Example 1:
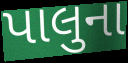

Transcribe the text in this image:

પાલુના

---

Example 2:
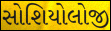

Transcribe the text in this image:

સોશિયોલોજી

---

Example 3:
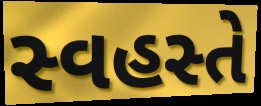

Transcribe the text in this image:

સ્વહસ્તે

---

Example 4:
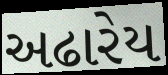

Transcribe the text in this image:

અઢારેય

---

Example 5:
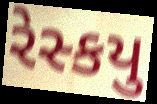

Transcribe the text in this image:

રેસ્કયુ